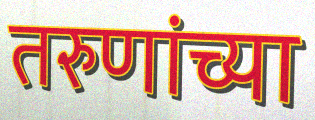
तरुणांच्या